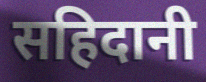
सहिदानी